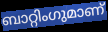
ബാറ്റിംഗുമാണ്